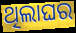
ଥିଲାଘର